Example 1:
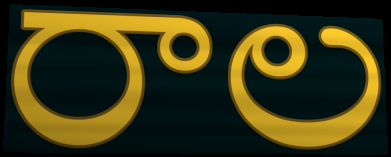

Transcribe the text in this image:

రాల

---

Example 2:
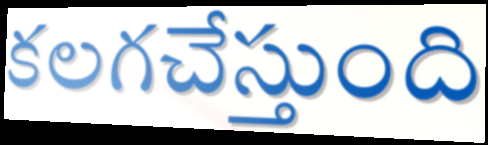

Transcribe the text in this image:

కలగచేస్తుంది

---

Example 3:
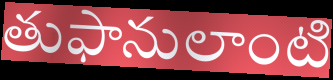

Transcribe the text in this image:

తుఫానులాంటి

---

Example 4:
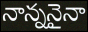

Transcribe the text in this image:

నాన్ననైనా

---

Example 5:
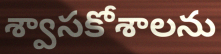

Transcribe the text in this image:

శ్వాసకోశాలను